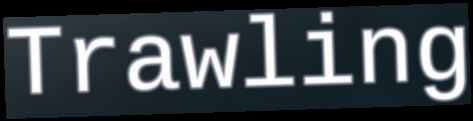
Trawling